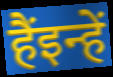
हैंइन्हें